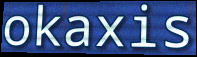
okaxis